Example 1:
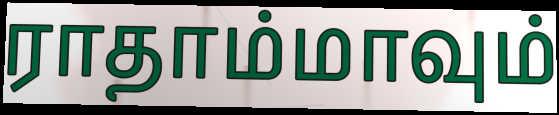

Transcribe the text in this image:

ராதாம்மாவும்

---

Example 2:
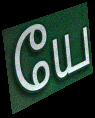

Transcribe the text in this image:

யே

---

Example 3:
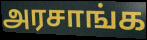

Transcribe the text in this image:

அரசாங்க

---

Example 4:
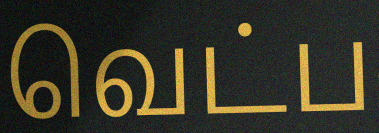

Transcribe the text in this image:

வெட்ப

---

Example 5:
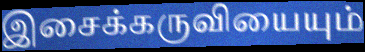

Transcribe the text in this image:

இசைக்கருவியையும்